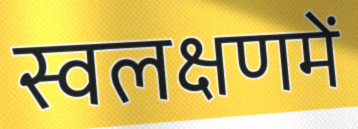
स्वलक्षणमें